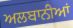
ਅਲਬਾਨੀਆਂ